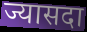
ज्यासदा